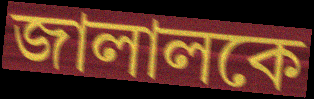
জালালকে